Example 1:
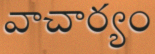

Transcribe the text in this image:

వాచార్యం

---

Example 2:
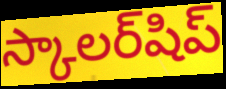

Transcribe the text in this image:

స్కాలర్‌షిప్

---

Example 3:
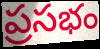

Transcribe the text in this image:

ప్రసభం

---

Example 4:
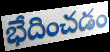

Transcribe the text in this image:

భేదించడం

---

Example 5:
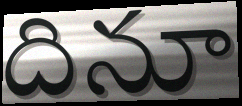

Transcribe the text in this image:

దినూ